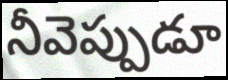
నీవెప్పుడూ